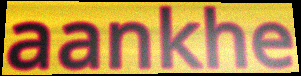
aankhe